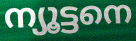
ന്യൂട്ടനെ